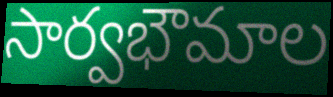
సార్వభౌమాల